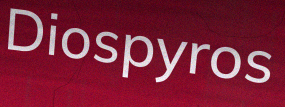
Diospyros